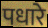
पधारे